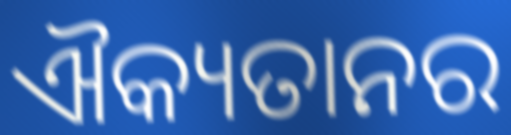
ଐକ୍ୟତାନର